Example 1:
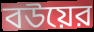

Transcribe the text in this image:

বউয়ের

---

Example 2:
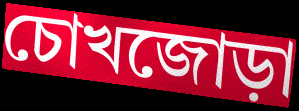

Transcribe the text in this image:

চোখজোড়া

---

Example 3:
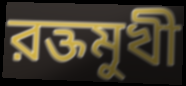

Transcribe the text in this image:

রক্তমুখী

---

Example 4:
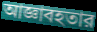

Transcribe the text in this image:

আজ্ঞাবহতার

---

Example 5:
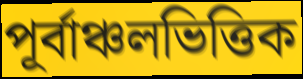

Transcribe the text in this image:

পূর্বাঞ্চলভিত্তিক